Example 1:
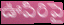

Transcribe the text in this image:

ఊపిరిపై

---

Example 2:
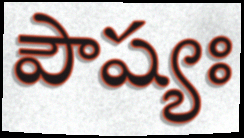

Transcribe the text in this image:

పౌష్యః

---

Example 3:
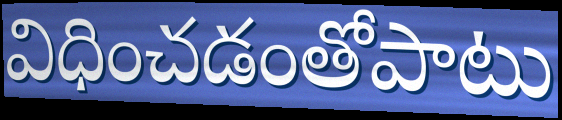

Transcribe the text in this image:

విధించడంతోపాటు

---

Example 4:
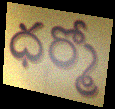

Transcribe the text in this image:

ధర్మో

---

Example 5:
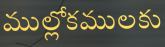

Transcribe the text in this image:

ముల్లోకములకు